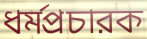
ধর্মপ্রচারক